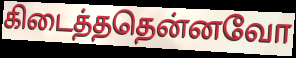
கிடைத்ததென்னவோ